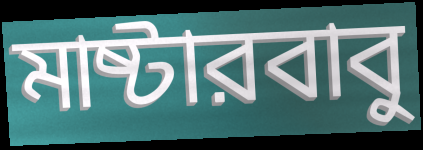
মাষ্টারবাবু